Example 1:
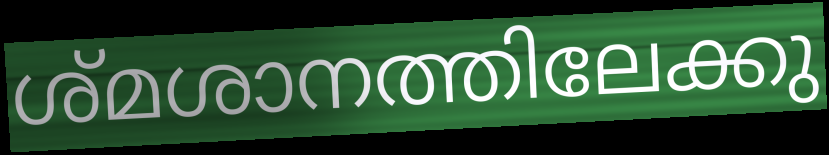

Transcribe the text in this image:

ശ്മശാനത്തിലേക്കു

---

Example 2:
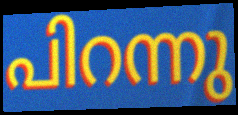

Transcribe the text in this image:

പിറന്നു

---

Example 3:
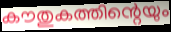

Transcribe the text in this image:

കൗതുകത്തിന്റെയും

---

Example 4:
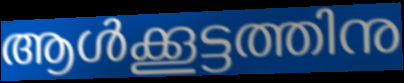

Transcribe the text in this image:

ആൾക്കൂട്ടത്തിനു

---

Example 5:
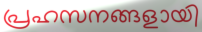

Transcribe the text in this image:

പ്രഹസനങ്ങളായി